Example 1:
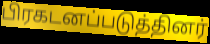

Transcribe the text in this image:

பிரகடனப்படுத்தினர்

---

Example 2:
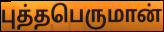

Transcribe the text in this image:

புத்தபெருமான்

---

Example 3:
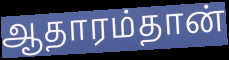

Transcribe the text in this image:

ஆதாரம்தான்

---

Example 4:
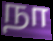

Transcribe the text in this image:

நா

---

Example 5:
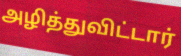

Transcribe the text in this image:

அழித்துவிட்டார்